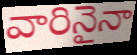
వారినైనా